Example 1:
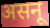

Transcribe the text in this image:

असनू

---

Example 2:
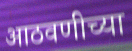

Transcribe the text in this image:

आठवणीच्या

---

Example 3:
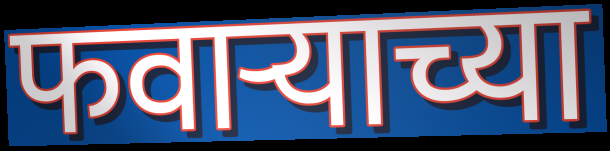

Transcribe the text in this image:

फवाऱ्याच्या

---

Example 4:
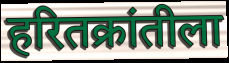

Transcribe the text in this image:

हरितक्रांतीला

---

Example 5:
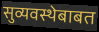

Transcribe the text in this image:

सुव्यवस्थेबाबत